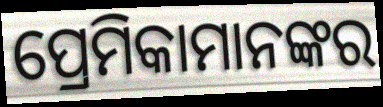
ପ୍ରେମିକାମାନଙ୍କର